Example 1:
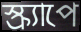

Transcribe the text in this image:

স্ক্র্যাপে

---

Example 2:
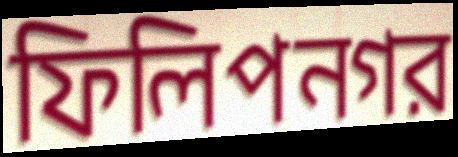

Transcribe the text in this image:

ফিলিপনগর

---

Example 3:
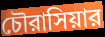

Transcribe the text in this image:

চৌরাসিয়ার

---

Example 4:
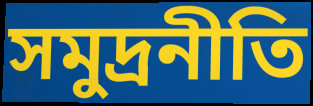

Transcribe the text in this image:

সমুদ্রনীতি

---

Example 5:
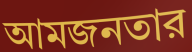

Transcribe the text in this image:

আমজনতার